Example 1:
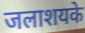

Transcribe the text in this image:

जलाशयके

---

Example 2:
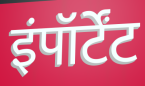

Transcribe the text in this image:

इंपॉर्टेंट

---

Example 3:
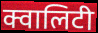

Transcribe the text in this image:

क्वालिटी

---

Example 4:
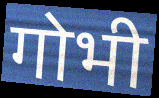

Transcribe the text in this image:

गोभी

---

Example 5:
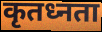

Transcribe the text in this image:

कृतध्नता